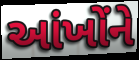
આંખોંને